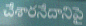
చేశారనేదానిపై